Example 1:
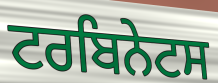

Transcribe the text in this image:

ਟਰਬਿਨੇਟਸ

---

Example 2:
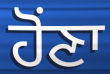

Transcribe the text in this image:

ਹੋਂਣਾ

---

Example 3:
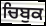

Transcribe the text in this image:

ਚਿਬੁਕ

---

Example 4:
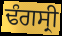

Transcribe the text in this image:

ਢੰਗਸ੍ਰੀ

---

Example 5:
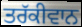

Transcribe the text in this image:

ਤਰੱਕੀਵਾਨ